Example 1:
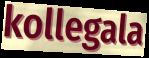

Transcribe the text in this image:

kollegala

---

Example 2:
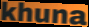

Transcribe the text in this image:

khuna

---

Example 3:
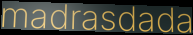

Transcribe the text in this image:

madrasdada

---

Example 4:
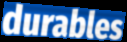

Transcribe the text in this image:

durables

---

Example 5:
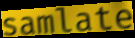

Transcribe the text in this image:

samlate